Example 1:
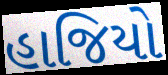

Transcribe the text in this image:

હાજિયો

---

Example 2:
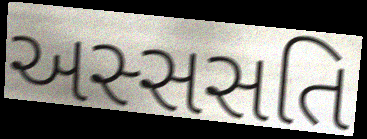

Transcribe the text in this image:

અસ્સસતિ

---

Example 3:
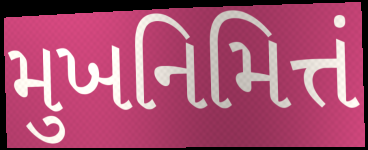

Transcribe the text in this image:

મુખનિમિત્તં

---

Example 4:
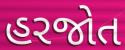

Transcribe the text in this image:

હરજોત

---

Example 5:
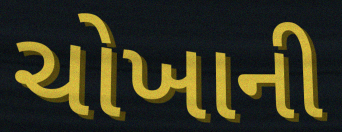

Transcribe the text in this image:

ચોખાની